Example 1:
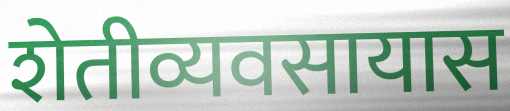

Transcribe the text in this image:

शेतीव्यवसायास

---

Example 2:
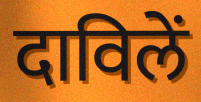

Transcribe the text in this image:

दाविलें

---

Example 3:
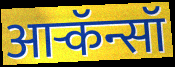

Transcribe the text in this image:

आर्‍कॅन्सॉ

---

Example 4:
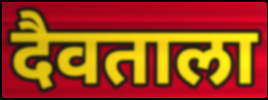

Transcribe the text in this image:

दैवताला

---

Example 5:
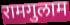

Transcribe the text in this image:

रामगुलाम